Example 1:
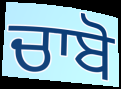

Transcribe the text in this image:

ਚਾਬੋ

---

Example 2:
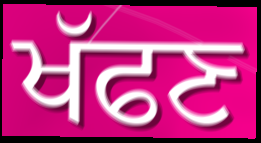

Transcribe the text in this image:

ਖੱਫਣ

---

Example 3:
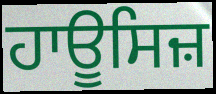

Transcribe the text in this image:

ਹਾਊਸਿਜ਼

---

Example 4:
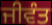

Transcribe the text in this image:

ਜੀਵੰਤ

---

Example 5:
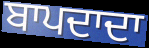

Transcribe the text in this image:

ਬਾਪਦਾਦਾ